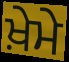
ਖ਼ੇਮੇ